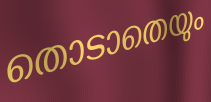
തൊടാതെയും